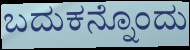
ಬದುಕನ್ನೊಂದು